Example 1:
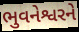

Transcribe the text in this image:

ભુવનેશ્વરને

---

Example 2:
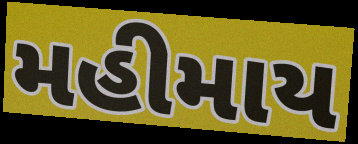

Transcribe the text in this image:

મહીમાય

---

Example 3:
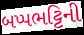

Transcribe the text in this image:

બપ્પભટ્ટિની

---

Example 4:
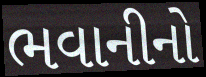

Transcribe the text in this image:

ભવાનીનો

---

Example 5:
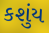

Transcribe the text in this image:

કશુંય